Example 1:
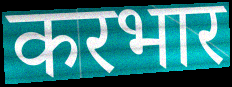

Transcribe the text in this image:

करभार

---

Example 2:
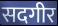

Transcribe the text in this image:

सदगीर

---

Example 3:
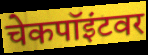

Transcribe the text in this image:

चेकपॉइंटवर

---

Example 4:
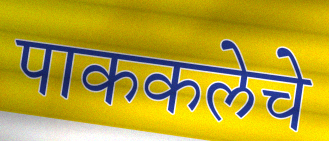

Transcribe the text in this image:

पाककलेचे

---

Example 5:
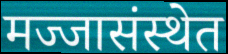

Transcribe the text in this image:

मज्जासंस्थेत